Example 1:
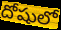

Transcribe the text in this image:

దోషులో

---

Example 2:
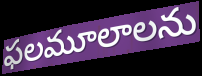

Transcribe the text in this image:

ఫలమూలాలను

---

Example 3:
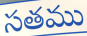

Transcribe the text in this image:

సతము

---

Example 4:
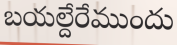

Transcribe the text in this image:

బయల్దేరేముందు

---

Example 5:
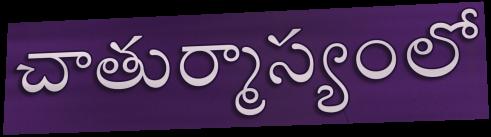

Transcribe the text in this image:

చాతుర్మాస్యంలో